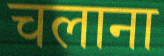
चलाना